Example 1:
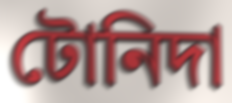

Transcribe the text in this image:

টোনিদা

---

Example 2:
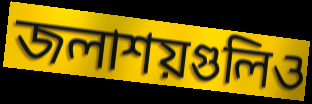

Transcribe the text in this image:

জলাশয়গুলিও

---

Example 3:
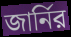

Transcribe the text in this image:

জার্নির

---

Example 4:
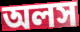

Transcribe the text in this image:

অলস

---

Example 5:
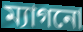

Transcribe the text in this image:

ম্যাগনো